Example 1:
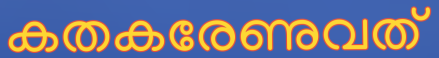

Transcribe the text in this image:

കതകരേണുവത്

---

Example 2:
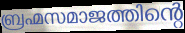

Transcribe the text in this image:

ബ്രഹ്മസമാജത്തിന്റെ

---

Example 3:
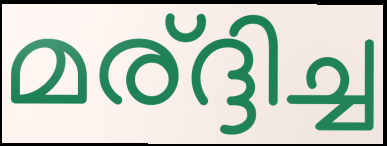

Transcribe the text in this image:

മര്ദ്ദിച്ച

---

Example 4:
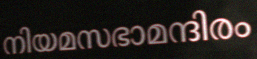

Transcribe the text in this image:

നിയമസഭാമന്ദിരം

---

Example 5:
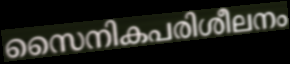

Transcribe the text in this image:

സൈനികപരിശീലനം